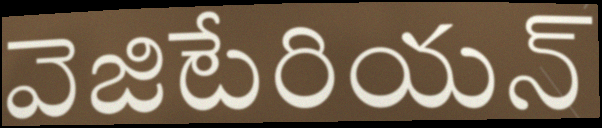
వెజిటేరియన్